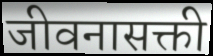
जीवनासक्ती